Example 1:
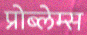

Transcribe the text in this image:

प्रोब्लेम्स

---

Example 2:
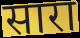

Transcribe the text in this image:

सारा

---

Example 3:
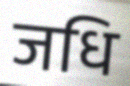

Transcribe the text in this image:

जधि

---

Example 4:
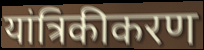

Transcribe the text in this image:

यांत्रिकीकरण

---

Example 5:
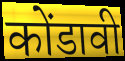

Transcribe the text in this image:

कोंडावी